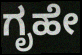
ಗೃಹೇ